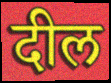
दील